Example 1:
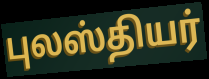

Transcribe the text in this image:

புலஸ்தியர்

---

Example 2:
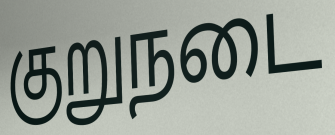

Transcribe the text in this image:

குறுநடை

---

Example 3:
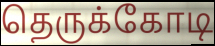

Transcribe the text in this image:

தெருக்கோடி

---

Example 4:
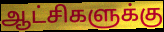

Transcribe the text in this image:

ஆட்சிகளுக்கு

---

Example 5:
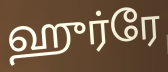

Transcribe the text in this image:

ஹுர்ரே